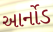
આર્નોડ